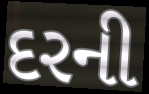
દરની